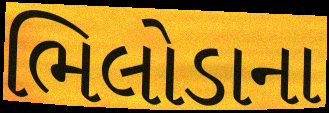
ભિલોડાના